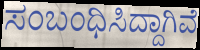
ಸಂಬಂಧಿಸಿದ್ದಾಗಿವೆ